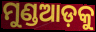
ମୁଣ୍ଡଆଡ଼କୁ